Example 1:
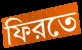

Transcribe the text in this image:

ফিরতে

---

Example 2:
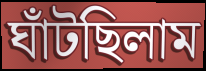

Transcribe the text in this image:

ঘাঁটছিলাম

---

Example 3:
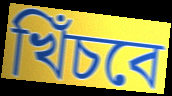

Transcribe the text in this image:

খিঁচবে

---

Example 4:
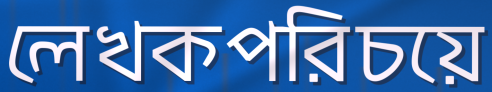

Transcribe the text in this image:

লেখকপরিচয়ে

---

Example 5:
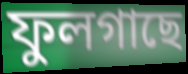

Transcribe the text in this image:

ফুলগাছে